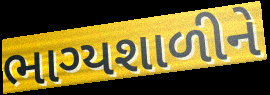
ભાગ્યશાળીને